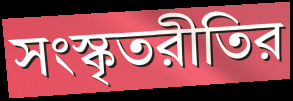
সংস্কৃতরীতির